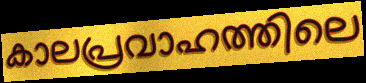
കാലപ്രവാഹത്തിലെ